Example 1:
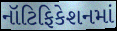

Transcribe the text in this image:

નૉટિફિકેશનમાં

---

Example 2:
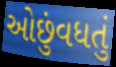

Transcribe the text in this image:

ઓછુંવધતું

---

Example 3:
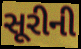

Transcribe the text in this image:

સૂરીની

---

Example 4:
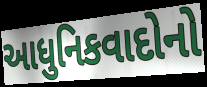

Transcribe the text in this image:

આધુનિકવાદોનો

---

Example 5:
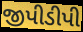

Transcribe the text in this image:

જીપીડીપી